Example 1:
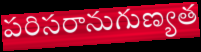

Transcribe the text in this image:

పరిసరానుగుణ్యత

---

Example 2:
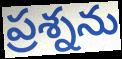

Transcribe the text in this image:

ప్రశ్నను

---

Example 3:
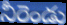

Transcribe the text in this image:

నీరెండు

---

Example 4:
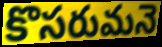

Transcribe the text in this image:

కొసరుమనె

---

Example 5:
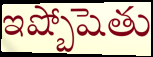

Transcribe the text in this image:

ఇష్బోషెతు